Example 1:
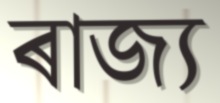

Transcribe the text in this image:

ৰাজ্য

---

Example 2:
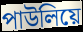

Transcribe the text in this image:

পাউলিয়ে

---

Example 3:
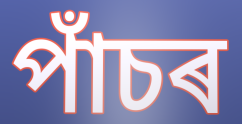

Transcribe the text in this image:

পাঁচৰ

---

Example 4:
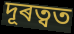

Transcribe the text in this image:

দূৰত্বত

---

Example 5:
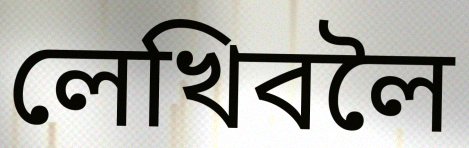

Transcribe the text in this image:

লেখিবলৈ